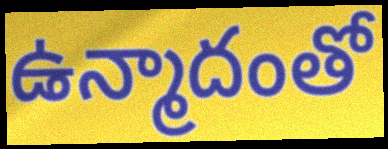
ఉన్మాదంతో